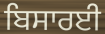
ਬਿਸਾਰਈ